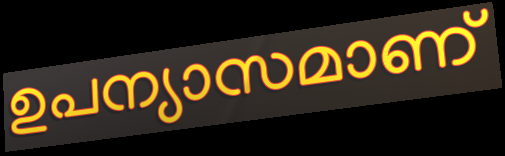
ഉപന്യാസമാണ്